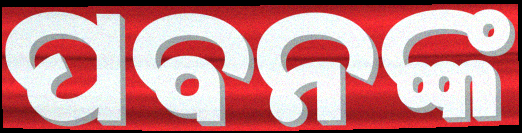
ପବନଙ୍କ